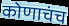
कोणाचंच